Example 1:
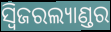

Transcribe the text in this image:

ସ୍ୱିଜରଲ୍ୟାଣ୍ଡର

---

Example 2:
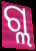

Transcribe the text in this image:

ଗ୍ଲ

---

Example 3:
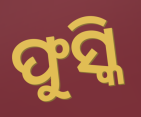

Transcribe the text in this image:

ଫୁସ୍କି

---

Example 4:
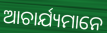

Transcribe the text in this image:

ଆଚାର୍ଯ୍ୟମାନେ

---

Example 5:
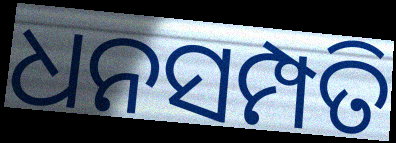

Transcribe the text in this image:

ଧନସମ୍ପତି